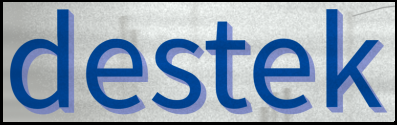
destek